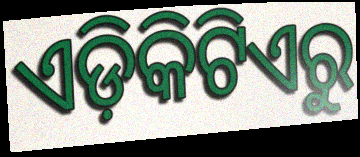
ଏଡ଼ିକିଟିଏରୁ